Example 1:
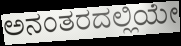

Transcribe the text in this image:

ಅನಂತರದಲ್ಲಿಯೇ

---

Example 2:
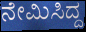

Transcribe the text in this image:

ನೇಮಿಸಿದ್ದ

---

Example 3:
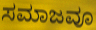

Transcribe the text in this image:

ಸಮಾಜವೂ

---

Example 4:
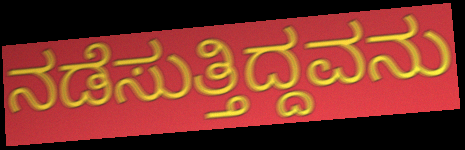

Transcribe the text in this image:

ನಡೆಸುತ್ತಿದ್ದವನು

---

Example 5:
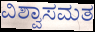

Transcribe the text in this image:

ವಿಶ್ವಾಸಮತ